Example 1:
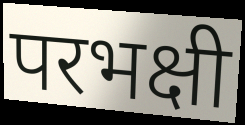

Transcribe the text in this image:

परभक्षी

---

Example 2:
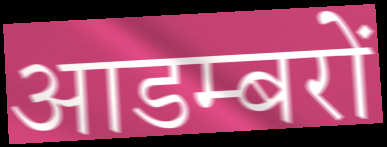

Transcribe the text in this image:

आडम्बरों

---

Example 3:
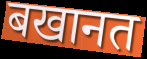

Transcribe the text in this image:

बखानत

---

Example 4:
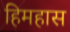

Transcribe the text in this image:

हिमहास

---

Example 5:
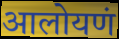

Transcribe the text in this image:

आलोयणं